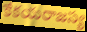
కేకయరాజస్య